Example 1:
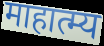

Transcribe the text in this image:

माहात्म्य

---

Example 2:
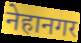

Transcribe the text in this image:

नेहानगर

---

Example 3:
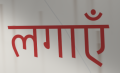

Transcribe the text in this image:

लगाएँ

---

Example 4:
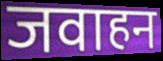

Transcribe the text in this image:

जवाहन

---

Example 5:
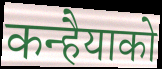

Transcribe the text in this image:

कन्हैयाको